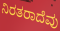
ನಿರತರಾದೆವು